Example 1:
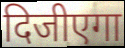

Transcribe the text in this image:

दिजीएगा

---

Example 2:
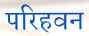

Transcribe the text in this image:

परिहवन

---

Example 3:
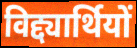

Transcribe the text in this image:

विद्द्यार्थियों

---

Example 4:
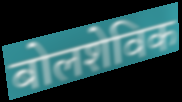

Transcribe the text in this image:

बोलशेविक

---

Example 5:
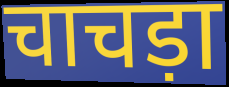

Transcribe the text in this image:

चाचड़ा